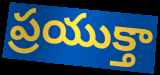
ప్రయుక్తా